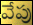
వేపు